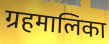
ग्रहमालिका